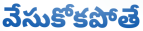
వేసుకోకపోతే